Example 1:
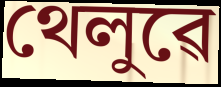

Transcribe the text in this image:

থেলুৱে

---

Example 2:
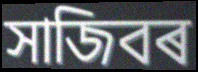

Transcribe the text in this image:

সাজিবৰ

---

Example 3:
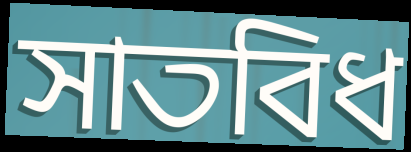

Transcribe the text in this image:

সাতবিধ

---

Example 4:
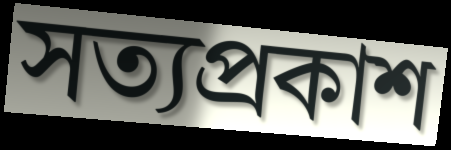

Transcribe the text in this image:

সত্যপ্ৰকাশ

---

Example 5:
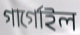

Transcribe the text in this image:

গাৰ্গোইল